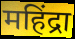
महिंद्रा